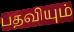
பதவியும்